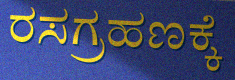
ರಸಗ್ರಹಣಕ್ಕೆ